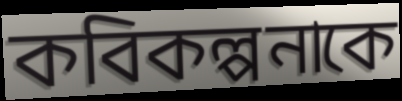
কবিকল্পনাকে